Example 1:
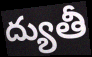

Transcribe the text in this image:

ద్యుతీ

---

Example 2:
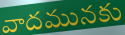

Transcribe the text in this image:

వాదమునకు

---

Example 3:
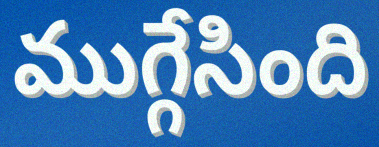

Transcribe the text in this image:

ముగ్గేసింది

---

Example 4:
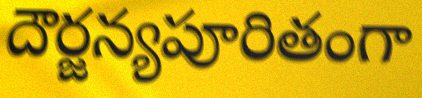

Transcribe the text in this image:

దౌర్జన్యపూరితంగా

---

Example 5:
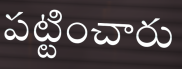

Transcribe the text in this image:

పట్టించారు